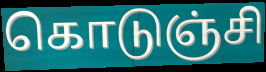
கொடுஞ்சி